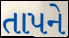
તાપને